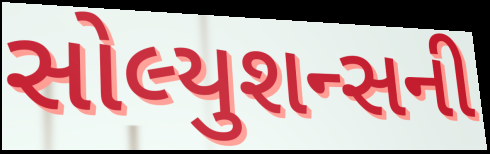
સોલ્યુશન્સની